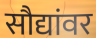
सौद्यांवर